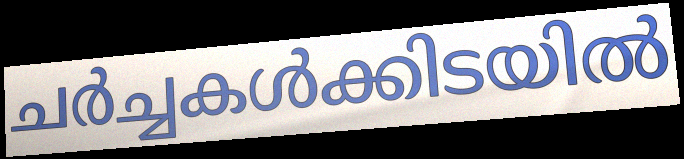
ചർച്ചകൾക്കിടയിൽ